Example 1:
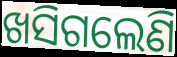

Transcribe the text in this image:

ଖସିଗଲେଣି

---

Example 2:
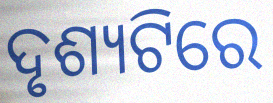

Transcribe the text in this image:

ଦୃଶ୍ୟଟିରେ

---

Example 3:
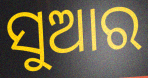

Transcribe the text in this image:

ସୁଆର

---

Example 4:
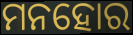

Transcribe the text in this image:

ମନହୋର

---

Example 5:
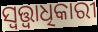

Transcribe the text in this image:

ସ୍ବତ୍ତ୍ବାଧିକାରୀ